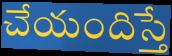
చేయందిస్తే